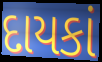
દાયકાં